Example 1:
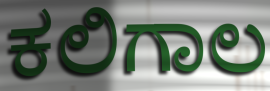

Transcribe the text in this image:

ಕಲಿಗಾಲ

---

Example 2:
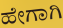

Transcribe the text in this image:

ಹೇಗಾಗಿ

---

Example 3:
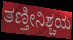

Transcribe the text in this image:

ತಣ್ತೀನಿಶ್ಚಯ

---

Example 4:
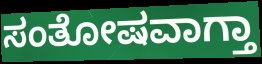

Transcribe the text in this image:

ಸಂತೋಷವಾಗ್ತಾ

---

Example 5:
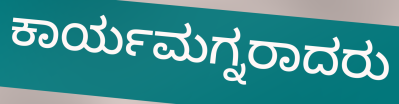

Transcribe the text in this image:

ಕಾರ್ಯಮಗ್ನರಾದರು